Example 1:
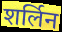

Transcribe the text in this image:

शर्लिन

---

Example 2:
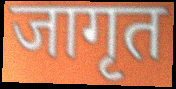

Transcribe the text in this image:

जागृत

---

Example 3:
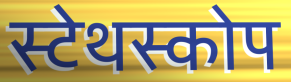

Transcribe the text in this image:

स्टेथस्कोप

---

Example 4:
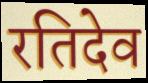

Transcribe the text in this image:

रतिदेव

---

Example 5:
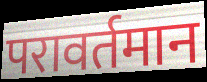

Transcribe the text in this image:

परावर्तमान